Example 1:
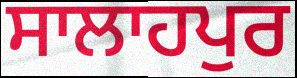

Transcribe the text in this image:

ਸਾਲਾਹਪੁਰ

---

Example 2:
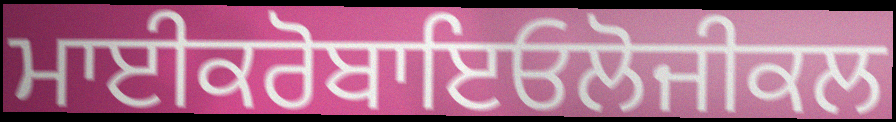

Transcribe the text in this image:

ਮਾਈਕਰੋਬਾਇਓਲੋਜੀਕਲ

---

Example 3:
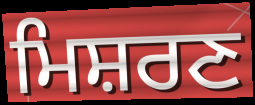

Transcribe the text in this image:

ਮਿਸ਼ਰਣ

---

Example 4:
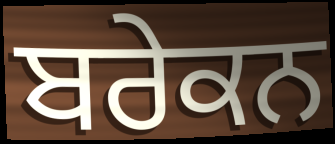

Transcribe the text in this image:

ਬਰੇਕਨ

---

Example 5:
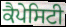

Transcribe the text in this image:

ਕੈਪੇਸਿਟੀ